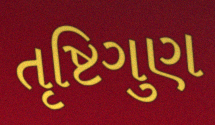
તૃષ્ટિગુણ